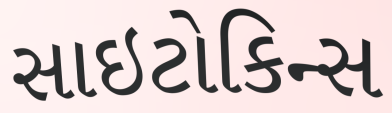
સાઇટોકિન્સ